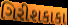
ગિરીશકાકા